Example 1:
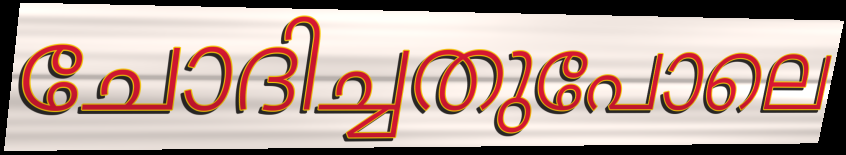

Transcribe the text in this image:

ചോദിച്ചതുപോലെ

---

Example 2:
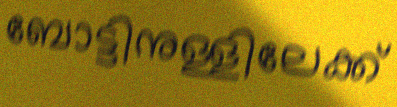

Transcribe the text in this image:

ബോട്ടിനുള്ളിലേക്ക്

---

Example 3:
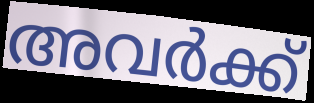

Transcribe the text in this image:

അവർക്ക്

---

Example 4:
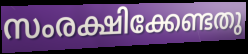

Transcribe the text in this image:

സംരക്ഷിക്കേണ്ടതു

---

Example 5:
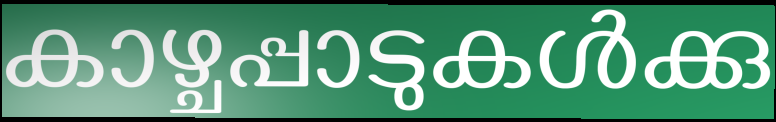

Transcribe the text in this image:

കാഴ്ചപ്പാടുകൾക്കു